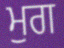
ਮੁਗ